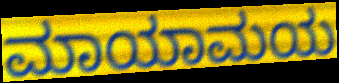
ಮಾಯಾಮಯ